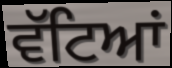
ਵੱਟਿਆਂ